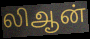
லிஆன்